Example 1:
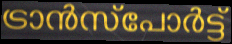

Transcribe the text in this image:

ട്രാൻസ്‌പോർട്ട്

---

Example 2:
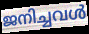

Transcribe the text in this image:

ജനിച്ചവൾ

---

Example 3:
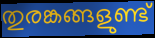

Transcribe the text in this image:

തുരങ്കങ്ങളുണ്ട്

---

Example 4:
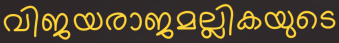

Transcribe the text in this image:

വിജയരാജമല്ലികയുടെ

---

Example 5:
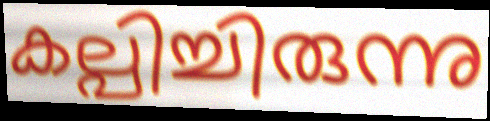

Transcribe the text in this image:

കല്പിച്ചിരുന്നു